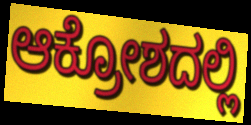
ಆಕ್ರೋಶದಲ್ಲಿ